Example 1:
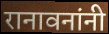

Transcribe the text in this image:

रानावनांनी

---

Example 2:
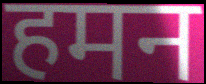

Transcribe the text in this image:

हमन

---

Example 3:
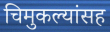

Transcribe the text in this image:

चिमुकल्यांसह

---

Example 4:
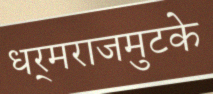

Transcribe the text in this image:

धर्मराजमुटके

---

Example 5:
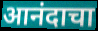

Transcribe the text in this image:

आनंदाचा